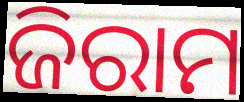
ଜିରାମ